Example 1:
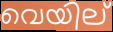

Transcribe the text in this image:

വെയില്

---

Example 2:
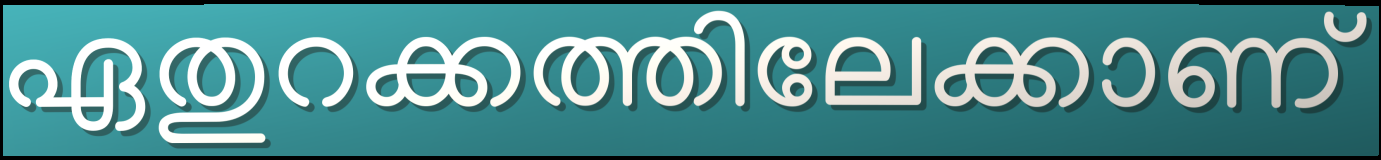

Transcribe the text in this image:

ഏതുറക്കത്തിലേക്കാണ്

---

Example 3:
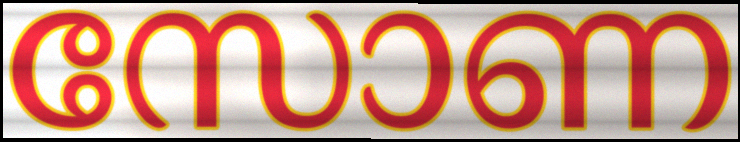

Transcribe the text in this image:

സോണ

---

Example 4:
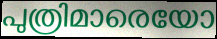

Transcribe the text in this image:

പുത്രിമാരെയോ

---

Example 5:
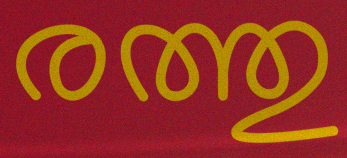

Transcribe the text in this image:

രത്തു